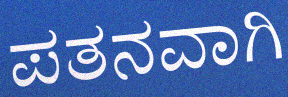
ಪತನವಾಗಿ